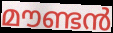
മൗണ്ടൻ